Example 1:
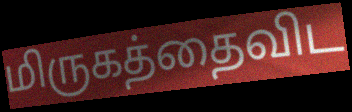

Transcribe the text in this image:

மிருகத்தைவிட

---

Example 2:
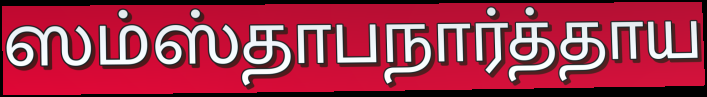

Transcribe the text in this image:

ஸம்ஸ்தாபநார்த்தாய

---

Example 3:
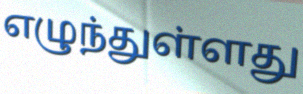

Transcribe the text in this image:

எழுந்துள்ளது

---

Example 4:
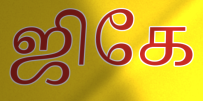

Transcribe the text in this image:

ஜிகே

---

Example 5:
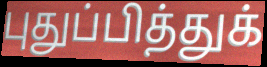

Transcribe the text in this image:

புதுப்பித்துக்